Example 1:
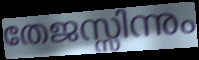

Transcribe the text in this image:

തേജസ്സിന്നും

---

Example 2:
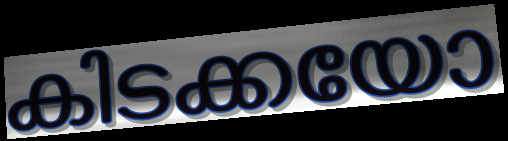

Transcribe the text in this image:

കിടക്കയോ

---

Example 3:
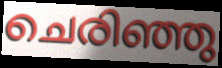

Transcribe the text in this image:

ചെരിഞ്ഞു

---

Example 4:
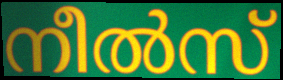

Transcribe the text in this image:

നീൽസ്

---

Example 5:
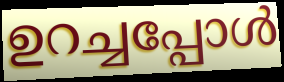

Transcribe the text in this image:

ഉറച്ചപ്പോൾ